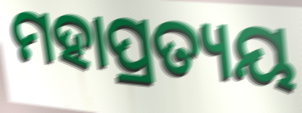
ମହାପ୍ରତ୍ୟୟ